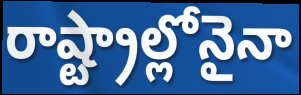
రాష్ట్రాల్లోనైనా